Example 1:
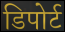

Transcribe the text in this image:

डिपोर्ट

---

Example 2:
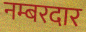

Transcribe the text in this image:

नम्बरदार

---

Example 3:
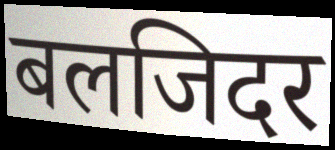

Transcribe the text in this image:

बलजिदर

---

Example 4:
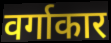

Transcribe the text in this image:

वर्गाकार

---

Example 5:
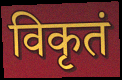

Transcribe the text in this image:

विकृतं